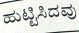
ಹುಟ್ಟಿಸಿದವು